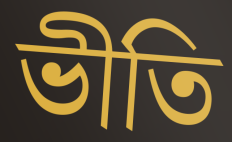
ভীতি